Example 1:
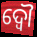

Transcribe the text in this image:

ଦ୍ଵୌ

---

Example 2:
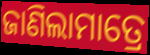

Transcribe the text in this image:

ଜାଣିଲାମାତ୍ରେ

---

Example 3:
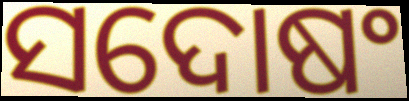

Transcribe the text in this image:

ସଦୋଷଂ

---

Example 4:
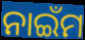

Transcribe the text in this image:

ନାଇଁମ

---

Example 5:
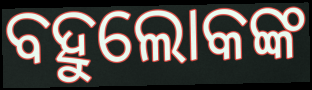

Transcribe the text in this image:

ବହୁଲୋକଙ୍କ